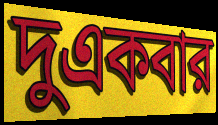
দুএকবার